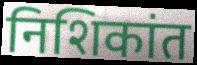
निशिकांत